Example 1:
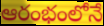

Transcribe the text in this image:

ఆరంభంలోనే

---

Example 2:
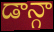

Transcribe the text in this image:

డాన్గా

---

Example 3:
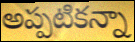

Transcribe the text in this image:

అప్పటికన్నా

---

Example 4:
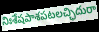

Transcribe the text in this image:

నిఃశేషపాశపటలచ్ఛిదురా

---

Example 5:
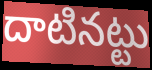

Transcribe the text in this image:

దాటినట్టు